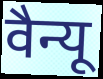
वैन्यू